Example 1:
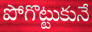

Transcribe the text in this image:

పోగొట్టుకునే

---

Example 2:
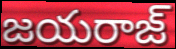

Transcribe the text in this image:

జయరాజ్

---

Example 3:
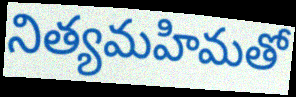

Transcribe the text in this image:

నిత్యమహిమతో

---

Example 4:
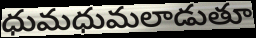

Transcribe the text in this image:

ధుమధుమలాడుతూ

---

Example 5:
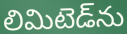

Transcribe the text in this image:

లిమిటెడ్‌ను